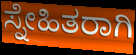
ಸ್ನೇಹಿತರಾಗಿ